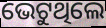
ଭେଟୁଥିଲେ